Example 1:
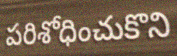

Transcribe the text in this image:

పరిశోధించుకొని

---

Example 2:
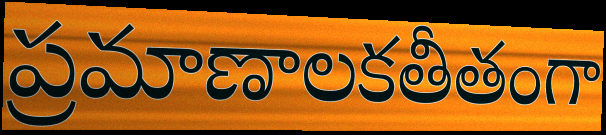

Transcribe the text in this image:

ప్రమాణాలకతీతంగా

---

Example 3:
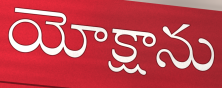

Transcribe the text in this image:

యోక్షాను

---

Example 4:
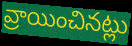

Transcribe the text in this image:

వ్రాయించినట్లు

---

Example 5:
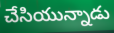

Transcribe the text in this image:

చేసియున్నాడు